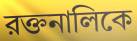
রক্তনালিকে